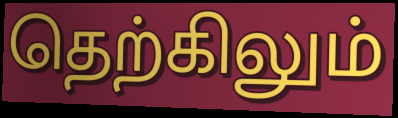
தெற்கிலும்